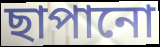
ছাপানো